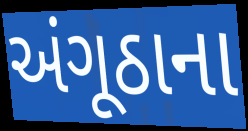
અંગૂઠાના